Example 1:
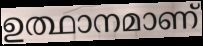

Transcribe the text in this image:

ഉത്ഥാനമാണ്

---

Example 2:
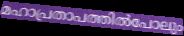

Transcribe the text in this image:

മഹാപ്രതാപത്തിൽപോലും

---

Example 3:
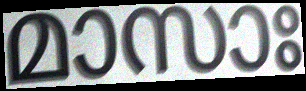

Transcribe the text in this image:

മാസാഃ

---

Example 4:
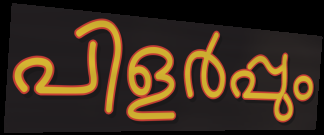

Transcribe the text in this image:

പിളർപ്പും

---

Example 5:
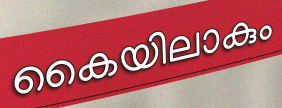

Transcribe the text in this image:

കൈയിലാകും